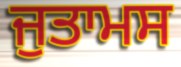
ਜੁਤਾਮਸ